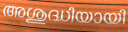
അശുദ്ധിയായി